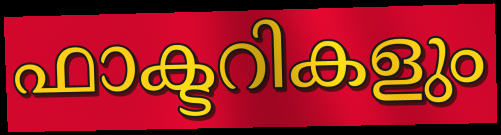
ഫാക്ടറികളും